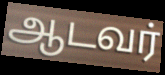
ஆடவர்